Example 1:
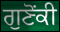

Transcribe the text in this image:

ਗੁਣੋਂਕੀ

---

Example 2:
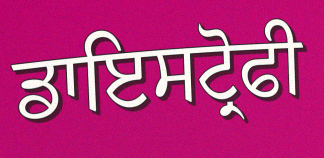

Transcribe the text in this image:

ਡਾਇਸਟ੍ਰੋਫੀ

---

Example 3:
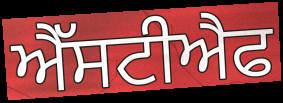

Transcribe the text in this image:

ਐੱਸਟੀਐਫ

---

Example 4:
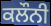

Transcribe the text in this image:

ਕਲੌਨੀ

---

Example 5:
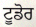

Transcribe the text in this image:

ਟੂਡੋਰ